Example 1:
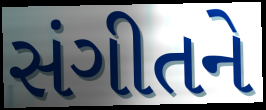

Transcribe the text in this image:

સંગીતને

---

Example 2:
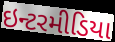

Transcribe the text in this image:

ઇન્ટરમીડિયા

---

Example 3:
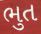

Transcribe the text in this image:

ભુત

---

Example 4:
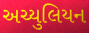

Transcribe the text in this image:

અચ્યુલિયન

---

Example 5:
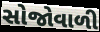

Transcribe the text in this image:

સોજોવાળી